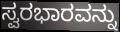
ಸ್ವರಭಾರವನ್ನು